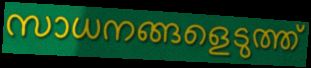
സാധനങ്ങളെടുത്ത്